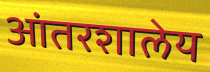
आंतरशालेय